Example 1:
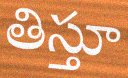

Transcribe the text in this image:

తిస్తూ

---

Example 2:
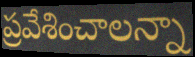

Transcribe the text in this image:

ప్రవేశించాలన్నా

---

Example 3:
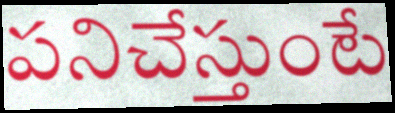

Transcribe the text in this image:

పనిచేస్తుంటే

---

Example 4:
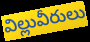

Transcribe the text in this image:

విల్లువీరులు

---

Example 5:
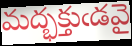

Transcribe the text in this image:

మద్భక్తుఁడవై